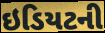
ઇડિયટની